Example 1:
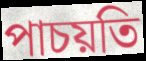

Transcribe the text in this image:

পাচয়তি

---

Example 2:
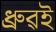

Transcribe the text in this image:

ধ্ৰুৱই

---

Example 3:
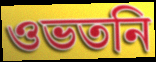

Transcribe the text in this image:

ওভতনি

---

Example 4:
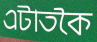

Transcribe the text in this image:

এটাতকৈ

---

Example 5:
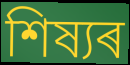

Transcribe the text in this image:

শিষ্যৰ